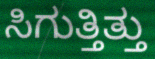
ಸಿಗುತ್ತಿತ್ತು